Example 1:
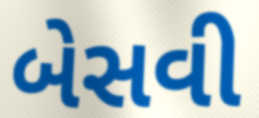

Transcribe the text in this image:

બેસવી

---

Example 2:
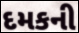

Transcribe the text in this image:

દમકની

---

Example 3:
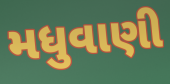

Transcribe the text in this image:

મધુવાણી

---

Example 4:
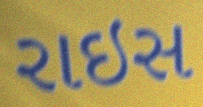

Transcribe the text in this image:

રાઇસ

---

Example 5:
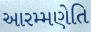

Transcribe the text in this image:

આરમ્મણેતિ